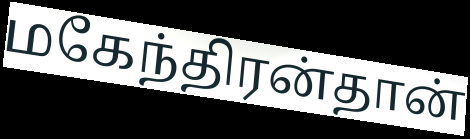
மகேந்திரன்தான்